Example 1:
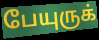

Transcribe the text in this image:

பேயுருக்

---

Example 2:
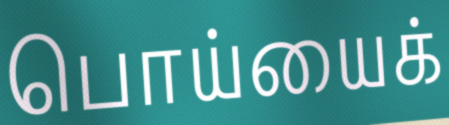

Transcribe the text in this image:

பொய்யைக்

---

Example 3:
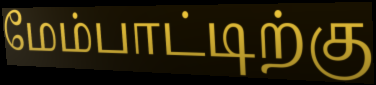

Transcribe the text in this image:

மேம்பாட்டிற்கு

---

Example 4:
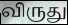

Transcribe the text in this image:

விருது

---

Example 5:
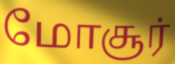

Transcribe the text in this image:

மோசூர்